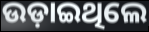
ଉଡ଼ାଇଥିଲେ